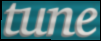
tune